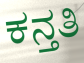
ಕನ್ತತಿ